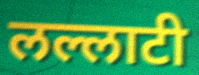
लल्लाटी